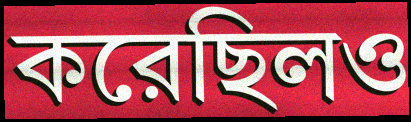
করেছিলও